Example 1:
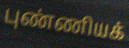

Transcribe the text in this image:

புண்ணியக்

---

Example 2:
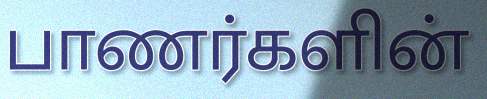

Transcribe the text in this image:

பாணர்களின்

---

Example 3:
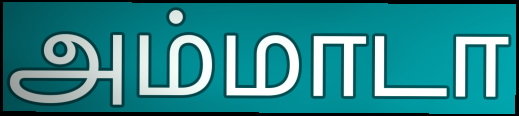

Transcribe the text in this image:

அம்மாடா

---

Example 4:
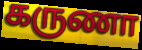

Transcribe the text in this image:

கருணா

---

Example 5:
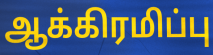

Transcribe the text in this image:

ஆக்கிரமிப்பு